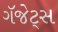
ગૅજેટ્સ